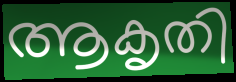
ആകൃതി